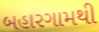
બહારગામથી